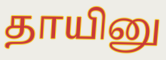
தாயினு